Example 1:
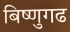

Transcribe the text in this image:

बिष्णुगढ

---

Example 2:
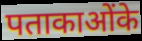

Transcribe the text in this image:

पताकाओंके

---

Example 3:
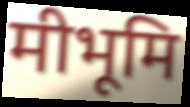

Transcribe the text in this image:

मीभूमि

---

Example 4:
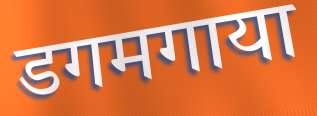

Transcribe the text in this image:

डगमगाया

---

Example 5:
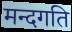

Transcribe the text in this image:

मन्दगति